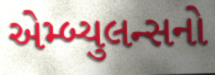
એમ્બ્યુલન્સનો